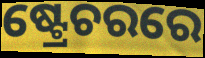
ଷ୍ଟ୍ରେଚରରେ